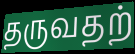
தருவதற்